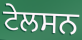
ਟੇਲਸਨ